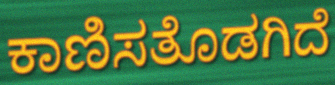
ಕಾಣಿಸತೊಡಗಿದೆ